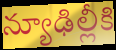
న్యూఢిల్లీకి